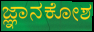
ಜ್ಞಾನಕೋಶ